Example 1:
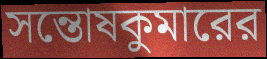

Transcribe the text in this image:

সন্তোষকুমারের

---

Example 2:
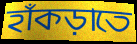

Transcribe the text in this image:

হাঁকড়াতে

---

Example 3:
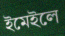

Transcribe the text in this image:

ইমেইলে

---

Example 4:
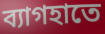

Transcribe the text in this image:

ব্যাগহাতে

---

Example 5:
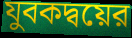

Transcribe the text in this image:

যুবকদ্বয়ের